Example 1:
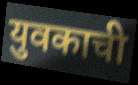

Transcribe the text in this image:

युवकाची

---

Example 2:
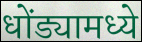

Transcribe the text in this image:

धोंड्यामध्ये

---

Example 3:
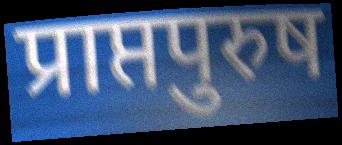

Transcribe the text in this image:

प्राप्तपुरुष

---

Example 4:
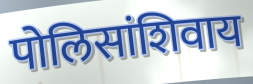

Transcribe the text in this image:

पोलिसांशिवाय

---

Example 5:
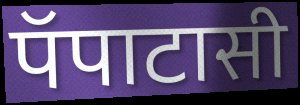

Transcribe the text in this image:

पॅपाटासी